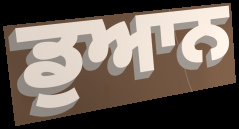
ਡੁਆਨ